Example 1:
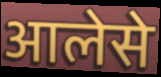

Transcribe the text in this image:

आलेसे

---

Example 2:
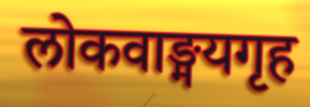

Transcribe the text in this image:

लोकवाङ्मयगृह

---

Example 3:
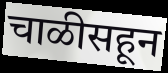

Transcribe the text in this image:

चाळीसहून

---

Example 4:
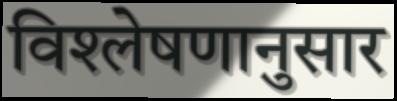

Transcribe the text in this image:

विश्लेषणानुसार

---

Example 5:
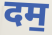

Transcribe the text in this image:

दम॒